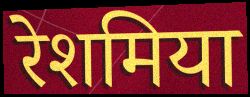
रेशमिया